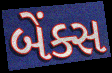
બેંક્સ